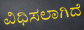
ವಿಧಿಸಲಾಗಿದೆ